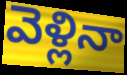
వెళ్లినా